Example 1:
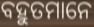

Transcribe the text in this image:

ବହୁତମାନେ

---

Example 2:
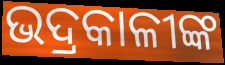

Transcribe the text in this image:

ଭଦ୍ରକାଳୀଙ୍କ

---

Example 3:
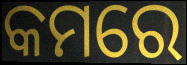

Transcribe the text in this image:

କମରେ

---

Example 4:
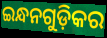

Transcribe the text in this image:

ଇନ୍ଧନଗୁଡ଼ିକର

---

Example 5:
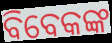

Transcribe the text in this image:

ବିବେକଙ୍କ